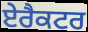
ਏਰੈਕਟਰ